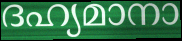
ദഹ്യമാനാ